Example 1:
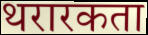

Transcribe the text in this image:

थरारकता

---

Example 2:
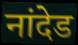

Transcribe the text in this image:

नांदेड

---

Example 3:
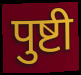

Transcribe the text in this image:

पुष्टी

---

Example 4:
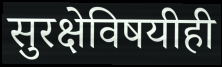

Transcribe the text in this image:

सुरक्षेविषयीही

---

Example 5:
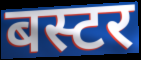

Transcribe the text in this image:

बस्टर